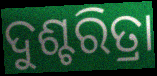
ଦୁଶ୍ଚରିତ୍ରା